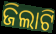
ଜିଲାଟି